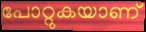
പോറ്റുകയാണ്